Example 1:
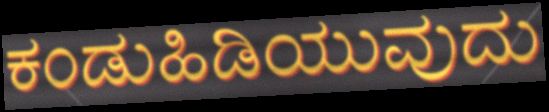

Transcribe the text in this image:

ಕಂಡುಹಿಡಿಯುವುದು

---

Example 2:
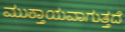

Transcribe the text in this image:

ಮುಕ್ತಾಯವಾಗುತ್ತದೆ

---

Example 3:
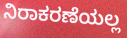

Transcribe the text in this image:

ನಿರಾಕರಣೆಯಲ್ಲ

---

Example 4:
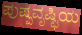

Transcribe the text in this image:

ಪುಷ್ಪವೃಷ್ಟಿಯ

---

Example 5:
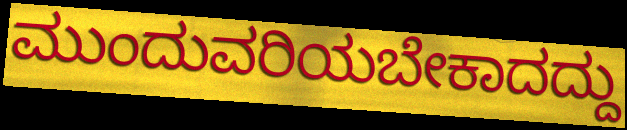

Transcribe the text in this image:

ಮುಂದುವರಿಯಬೇಕಾದದ್ದು